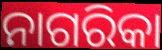
ନାଗରିକା